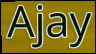
Ajay